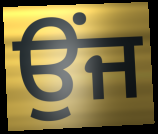
ਉੰਜ